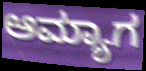
ಆಮ್ಯಾಗ